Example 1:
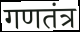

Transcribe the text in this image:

गणतंत्र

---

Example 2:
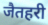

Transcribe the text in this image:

जैतहरी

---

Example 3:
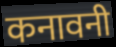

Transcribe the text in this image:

कनावनी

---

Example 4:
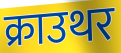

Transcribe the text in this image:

क्राउथर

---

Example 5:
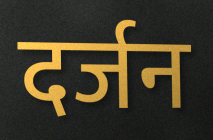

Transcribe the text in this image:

दर्जन